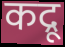
कद्रू